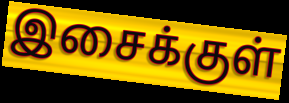
இசைக்குள்